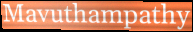
Mavuthampathy